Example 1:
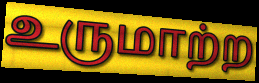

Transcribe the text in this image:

உருமாற்ற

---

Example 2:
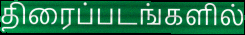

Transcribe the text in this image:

திரைப்படங்களில்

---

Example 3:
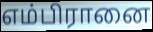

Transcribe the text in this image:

எம்பிரானை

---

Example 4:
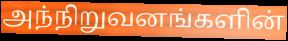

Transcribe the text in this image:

அந்நிறுவனங்களின்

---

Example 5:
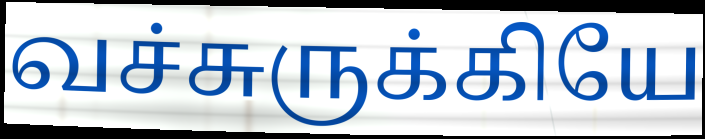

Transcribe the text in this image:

வச்சுருக்கியே